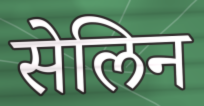
सेलिन